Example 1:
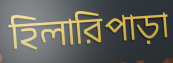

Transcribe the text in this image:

হিলারিপাড়া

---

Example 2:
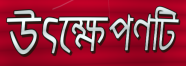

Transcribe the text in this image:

উৎক্ষেপণটি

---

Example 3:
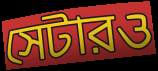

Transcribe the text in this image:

সেটারও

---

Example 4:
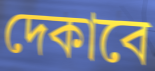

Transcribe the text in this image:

দেকাবে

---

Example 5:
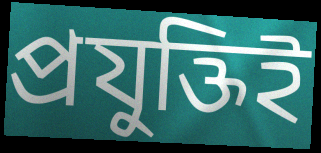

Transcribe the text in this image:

প্রযুক্তিই